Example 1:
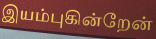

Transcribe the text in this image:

இயம்புகின்றேன்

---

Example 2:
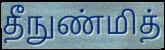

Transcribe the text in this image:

தீநுண்மித்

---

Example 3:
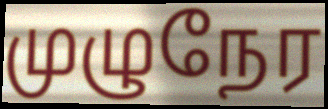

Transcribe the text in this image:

முழுநேர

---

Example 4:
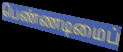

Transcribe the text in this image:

பெண்ணடிமைப்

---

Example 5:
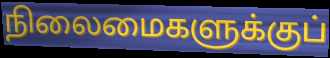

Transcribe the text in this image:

நிலைமைகளுக்குப்